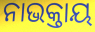
ନାଭକ୍ତାୟ